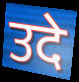
उदे